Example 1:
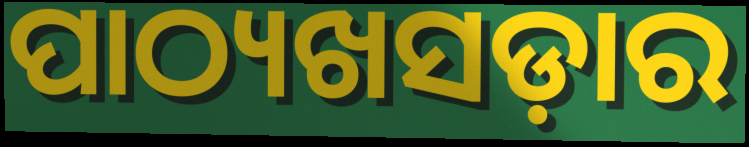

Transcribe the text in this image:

ପାଠ୍ୟଖସଡ଼ାର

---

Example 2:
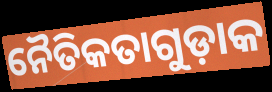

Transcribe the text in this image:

ନୈତିକତାଗୁଡ଼ାକ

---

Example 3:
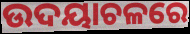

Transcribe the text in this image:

ଉଦୟାଚଳରେ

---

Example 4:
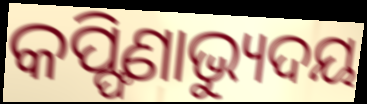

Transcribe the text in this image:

କପ୍ଫିଣାଭ୍ୟୁଦୟ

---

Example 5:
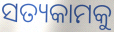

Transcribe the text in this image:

ସତ୍ୟକାମକୁ